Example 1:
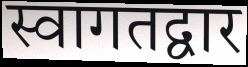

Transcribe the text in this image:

स्वागतद्वार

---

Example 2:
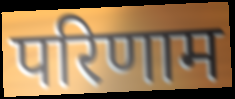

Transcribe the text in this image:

परिणाम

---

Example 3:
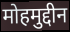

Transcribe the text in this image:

मोहमुद्दीन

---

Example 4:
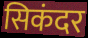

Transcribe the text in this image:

सिकंदर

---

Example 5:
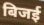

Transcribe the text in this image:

बिजई